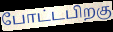
போட்டபிறகு